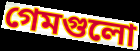
গেমগুলো